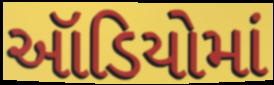
ઑડિયોમાં